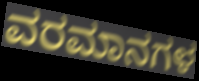
ವರಮಾನಗಳ